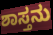
ಶಾಸ್ತನು